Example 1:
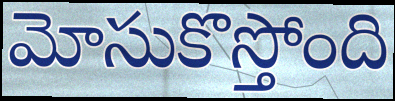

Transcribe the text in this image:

మోసుకొస్తోంది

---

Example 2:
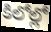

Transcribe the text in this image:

కిలోల్లో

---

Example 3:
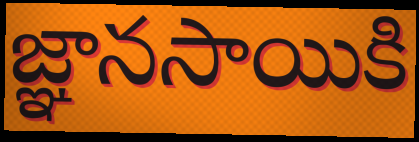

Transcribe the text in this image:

జ్ఞానసాయికి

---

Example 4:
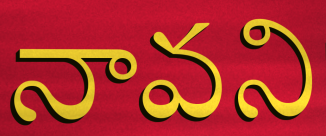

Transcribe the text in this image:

నావని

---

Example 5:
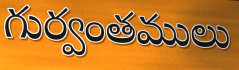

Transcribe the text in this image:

గుర్వంతములు